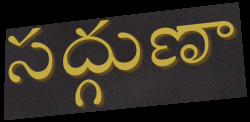
సద్గుణా